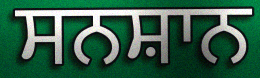
ਸਨਸ਼ਾਨ